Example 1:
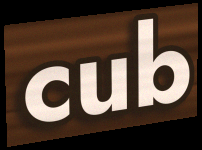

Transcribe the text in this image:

cub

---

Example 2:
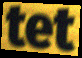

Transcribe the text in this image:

tet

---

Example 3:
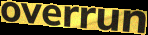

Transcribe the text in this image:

overrun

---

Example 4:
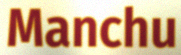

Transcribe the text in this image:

Manchu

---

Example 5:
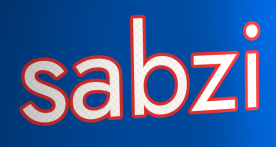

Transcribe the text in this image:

sabzi